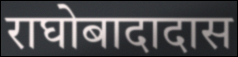
राघोबादादास